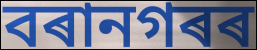
বৰানগৰৰ